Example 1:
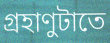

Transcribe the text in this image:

গ্রহাণুটাতে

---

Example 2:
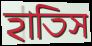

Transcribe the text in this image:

হাতিস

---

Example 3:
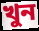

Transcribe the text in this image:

খুন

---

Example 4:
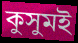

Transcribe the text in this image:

কুসুমই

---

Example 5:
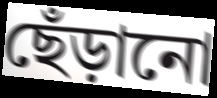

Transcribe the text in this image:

ছেঁড়ানো